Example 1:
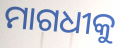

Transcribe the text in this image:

ମାଗଧୀକୁ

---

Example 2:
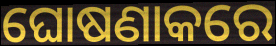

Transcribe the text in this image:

ଘୋଷଣାକରେ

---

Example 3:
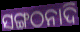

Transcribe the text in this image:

ସଙ୍ଗଠନାଦି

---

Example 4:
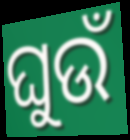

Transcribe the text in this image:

ଘୁଉଁ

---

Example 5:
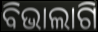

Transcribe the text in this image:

ବିଭାଲାଗି